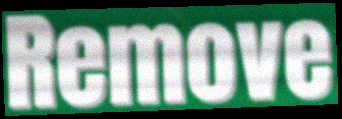
Remove